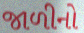
જાળીનો